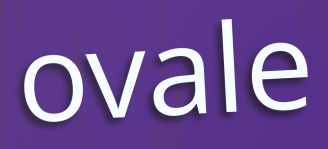
ovale